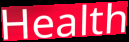
Health